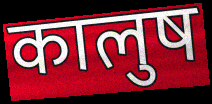
कालुष